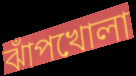
ঝাঁপখোলা